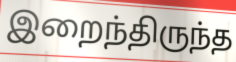
இறைந்திருந்த